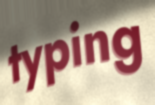
typing